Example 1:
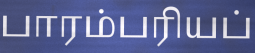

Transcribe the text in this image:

பாரம்பரியப்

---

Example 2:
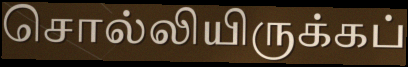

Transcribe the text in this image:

சொல்லியிருக்கப்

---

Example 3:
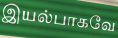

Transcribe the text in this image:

இயல்பாகவே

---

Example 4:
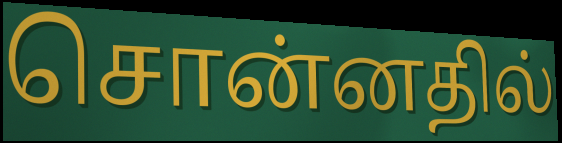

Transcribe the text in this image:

சொன்னதில்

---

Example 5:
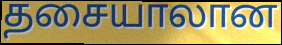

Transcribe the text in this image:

தசையாலான